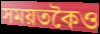
সময়তকৈও